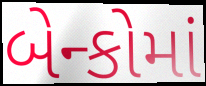
બેન્કોમાં